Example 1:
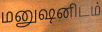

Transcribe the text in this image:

மனுஷனிடம்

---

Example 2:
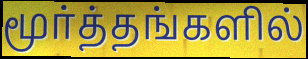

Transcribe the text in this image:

மூர்த்தங்களில்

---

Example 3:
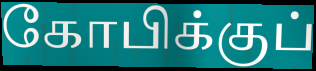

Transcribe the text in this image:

கோபிக்குப்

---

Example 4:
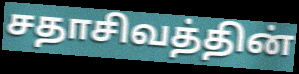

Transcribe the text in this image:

சதாசிவத்தின்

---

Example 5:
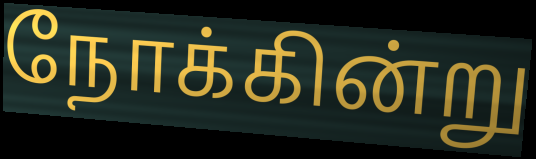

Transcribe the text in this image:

நோக்கின்று